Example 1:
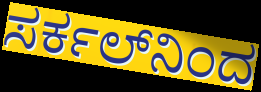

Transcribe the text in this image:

ಸರ್ಕಲ್‌ನಿಂದ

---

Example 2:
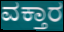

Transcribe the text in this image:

ವಕ್ತಾರ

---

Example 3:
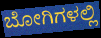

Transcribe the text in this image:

ಬೋಗಿಗಳಲ್ಲಿ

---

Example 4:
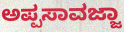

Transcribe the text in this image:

ಅಪ್ಪಸಾವಜ್ಜಾ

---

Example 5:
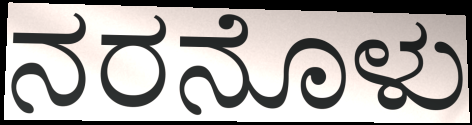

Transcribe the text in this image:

ನರನೊಳು